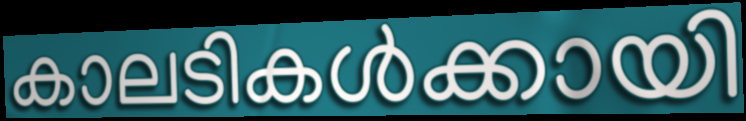
കാലടികൾക്കായി